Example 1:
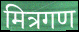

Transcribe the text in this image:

मित्रगण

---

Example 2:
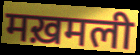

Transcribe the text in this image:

मख़मली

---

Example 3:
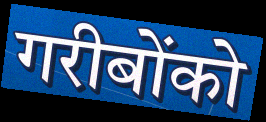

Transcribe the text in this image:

गरीबोंको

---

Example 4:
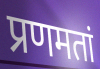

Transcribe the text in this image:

प्रणमतां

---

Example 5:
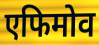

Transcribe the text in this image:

एफिमोव